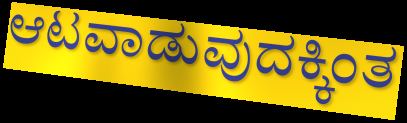
ಆಟವಾಡುವುದಕ್ಕಿಂತ